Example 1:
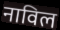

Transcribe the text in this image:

नाविल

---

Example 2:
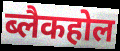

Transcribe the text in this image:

ब्लैकहोल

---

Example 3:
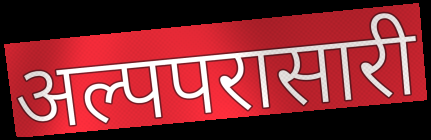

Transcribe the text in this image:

अल्पपरासारी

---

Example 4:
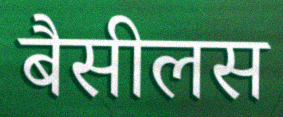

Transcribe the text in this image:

बैसीलस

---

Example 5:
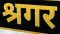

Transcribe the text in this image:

श्रगर